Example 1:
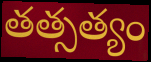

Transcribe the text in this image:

తత్సత్యం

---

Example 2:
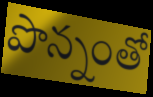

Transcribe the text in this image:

పొన్నంతో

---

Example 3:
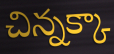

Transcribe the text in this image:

చిన్నక్కా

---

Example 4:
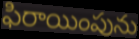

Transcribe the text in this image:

ఫిరాయింపును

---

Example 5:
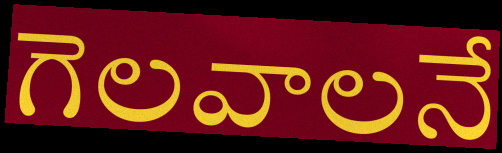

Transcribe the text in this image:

గెలవాలనే